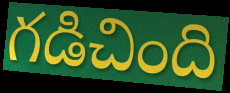
గడిచింది